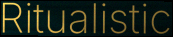
Ritualistic